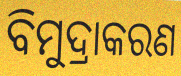
ବିମୁଦ୍ରାକରଣ